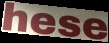
hese